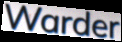
Warder